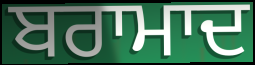
ਬਰਾਮਾਦ